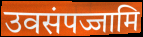
उवसंपज्जामि